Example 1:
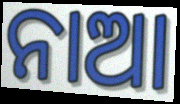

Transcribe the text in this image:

ନାଆ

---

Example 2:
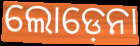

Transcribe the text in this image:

ଲୋଡ଼େନା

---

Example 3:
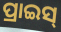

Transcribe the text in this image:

ପ୍ରାଇସ୍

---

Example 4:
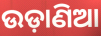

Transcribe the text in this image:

ଉଡ଼ାଣିଆ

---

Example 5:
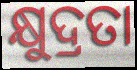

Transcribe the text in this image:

କ୍ଷୁଦ୍ରତା